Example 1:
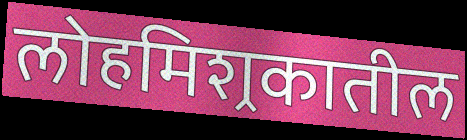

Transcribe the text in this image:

लोहमिश्रकातील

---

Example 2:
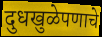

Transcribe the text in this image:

दुधखुळेपणाचे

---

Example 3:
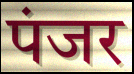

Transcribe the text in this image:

पंजर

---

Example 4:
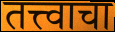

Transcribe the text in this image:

तत्त्वाचा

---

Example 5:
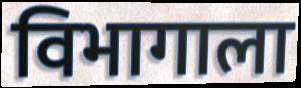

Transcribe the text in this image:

विभागाला